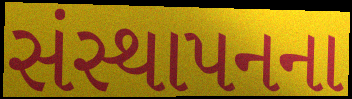
સંસ્થાપનના